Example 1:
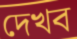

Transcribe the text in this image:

দেখব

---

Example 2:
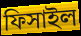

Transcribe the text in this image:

ফিসাইল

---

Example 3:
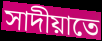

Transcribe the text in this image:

সাদীয়াতে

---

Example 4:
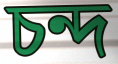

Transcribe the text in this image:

চন্দ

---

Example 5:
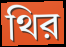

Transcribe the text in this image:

থির